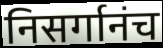
निसर्गानंच